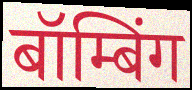
बॉम्बिंग